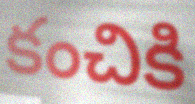
కంచికి